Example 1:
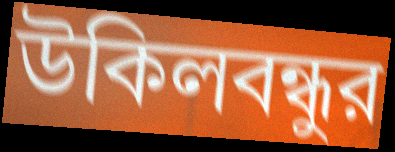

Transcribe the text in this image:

উকিলবন্ধুর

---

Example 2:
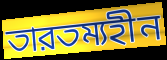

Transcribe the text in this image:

তারতম্যহীন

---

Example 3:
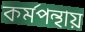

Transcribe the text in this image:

কর্মপন্থায়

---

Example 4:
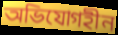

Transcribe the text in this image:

অভিযোগহীন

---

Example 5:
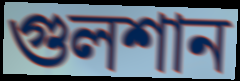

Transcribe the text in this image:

গুলশান